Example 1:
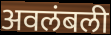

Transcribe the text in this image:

अवलंबली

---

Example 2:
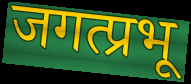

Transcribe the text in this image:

जगत्प्रभू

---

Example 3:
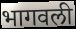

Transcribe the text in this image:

भागवली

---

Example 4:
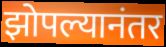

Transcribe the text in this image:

झोपल्यानंतर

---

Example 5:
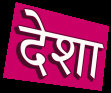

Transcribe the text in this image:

देशा